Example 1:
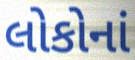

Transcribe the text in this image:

લોકોનાં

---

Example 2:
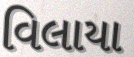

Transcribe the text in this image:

વિલાયા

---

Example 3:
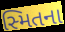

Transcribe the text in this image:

સ્મિતના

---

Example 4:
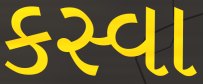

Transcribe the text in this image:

કસ્વા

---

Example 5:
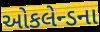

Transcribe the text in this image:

ઓકલેન્ડના